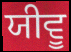
ਯੀਵੂ